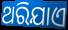
ଥରିଯାଏ